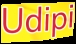
Udipi